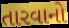
તારવાનો